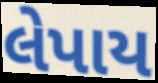
લેપાય